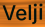
Velji